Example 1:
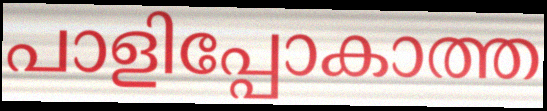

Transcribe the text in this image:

പാളിപ്പോകാത്ത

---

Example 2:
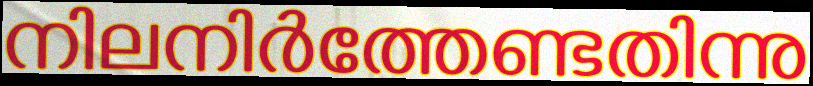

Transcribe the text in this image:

നിലനിർത്തേണ്ടതിന്നു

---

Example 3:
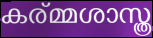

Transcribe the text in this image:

കര്മ്മശാസ്ത്ര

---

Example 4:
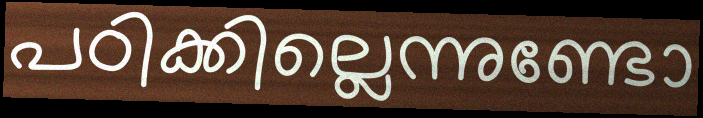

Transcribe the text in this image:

പഠിക്കില്ലെന്നുണ്ടോ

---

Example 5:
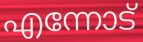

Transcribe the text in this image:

എന്നോട്